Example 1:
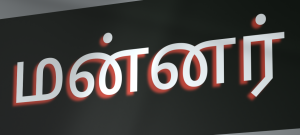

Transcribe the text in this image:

மன்னர்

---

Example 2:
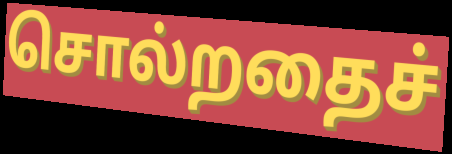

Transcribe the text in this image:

சொல்றதைச்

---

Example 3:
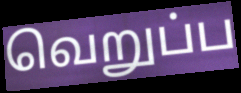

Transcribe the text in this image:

வெறுப்ப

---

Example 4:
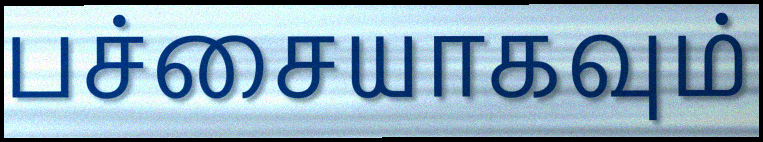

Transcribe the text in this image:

பச்சையாகவும்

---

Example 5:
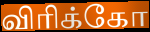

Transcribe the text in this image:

விரிக்கோ